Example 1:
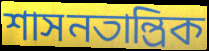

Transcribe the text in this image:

শাসনতান্ত্রিক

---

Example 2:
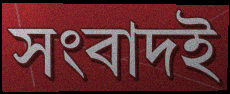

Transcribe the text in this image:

সংবাদই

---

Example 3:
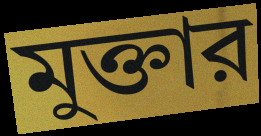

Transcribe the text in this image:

মুক্তার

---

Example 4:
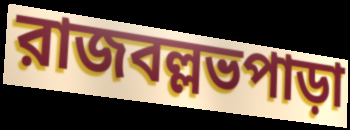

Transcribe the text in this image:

রাজবল্লভপাড়া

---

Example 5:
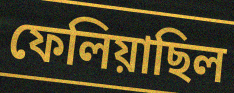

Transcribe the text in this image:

ফেলিয়াছিল